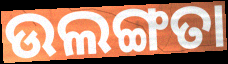
ଉଲଙ୍ଗତା